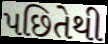
પછિતેથી